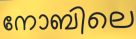
നോബിലെ